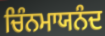
ਚਿੰਨਮਾਯਨੰਦ